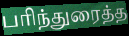
பரிந்துரைத்த